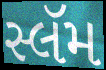
સ્લૅમ